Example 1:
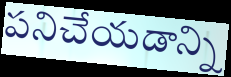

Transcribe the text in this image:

పనిచేయడాన్ని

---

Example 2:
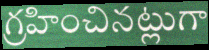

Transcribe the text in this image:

గ్రహించినట్లుగా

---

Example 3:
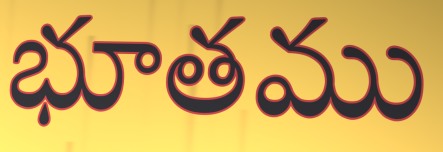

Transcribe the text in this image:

భూతము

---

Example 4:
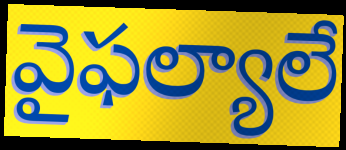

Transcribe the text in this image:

వైఫల్యాలే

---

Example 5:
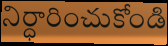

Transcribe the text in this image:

నిర్ధారించుకోండి